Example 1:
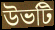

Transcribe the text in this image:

উভটি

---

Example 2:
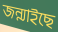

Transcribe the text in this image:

জন্মাইছে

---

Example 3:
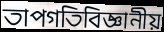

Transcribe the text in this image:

তাপগতিবিজ্ঞানীয়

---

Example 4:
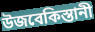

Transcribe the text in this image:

উজবেকিস্তানী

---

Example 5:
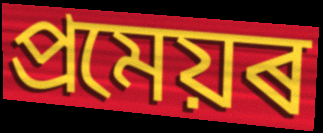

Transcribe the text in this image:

প্ৰমেয়ৰ